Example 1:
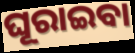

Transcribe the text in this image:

ଘୂରାଇବା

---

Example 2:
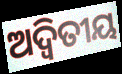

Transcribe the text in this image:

ଅଦ୍ବିତୀୟ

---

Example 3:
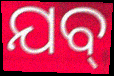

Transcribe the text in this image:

ଯବ୍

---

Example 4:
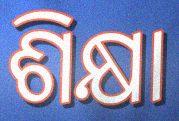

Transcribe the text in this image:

ଶିକ୍ଷା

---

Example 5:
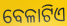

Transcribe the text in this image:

ବେଳାଟିଏ